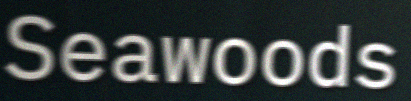
Seawoods